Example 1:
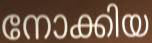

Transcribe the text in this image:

നോക്കിയ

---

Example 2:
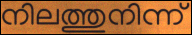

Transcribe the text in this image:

നിലത്തുനിന്ന്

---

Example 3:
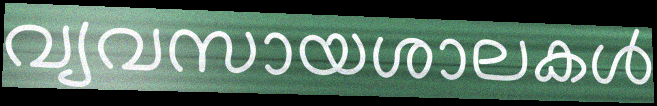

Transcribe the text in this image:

വ്യവസായശാലകൾ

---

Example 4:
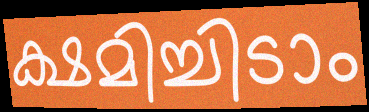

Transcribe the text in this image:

ക്ഷമിച്ചിടാം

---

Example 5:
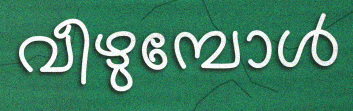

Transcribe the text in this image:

വീഴുമ്പോൾ